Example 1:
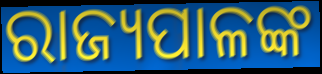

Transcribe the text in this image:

ରାଜ୍ୟପାଳଙ୍କ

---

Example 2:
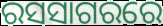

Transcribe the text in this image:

ରସସାଗରରେ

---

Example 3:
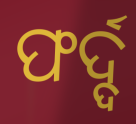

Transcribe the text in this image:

ଫର୍ଦ୍ଦ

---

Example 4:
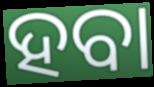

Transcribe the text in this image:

ହବା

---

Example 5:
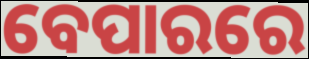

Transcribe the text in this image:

ବେପାରରେ